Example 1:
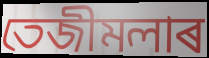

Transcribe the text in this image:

তেজীমলাৰ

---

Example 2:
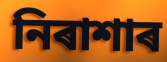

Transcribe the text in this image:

নিৰাশাৰ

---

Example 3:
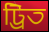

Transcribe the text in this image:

ট্ৰিত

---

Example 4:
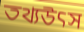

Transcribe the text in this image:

তথ্যউৎস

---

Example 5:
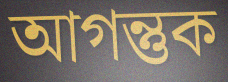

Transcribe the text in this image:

আগন্তুক